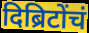
दिब्रिटोंचं